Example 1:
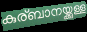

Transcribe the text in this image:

കുര്ബാനയ്ക്കുള്ള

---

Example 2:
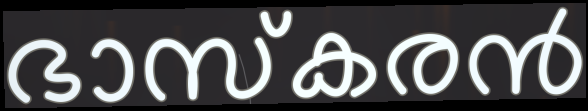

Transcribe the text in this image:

ഭാസ്കരൻ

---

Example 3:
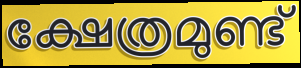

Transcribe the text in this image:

ക്ഷേത്രമുണ്ട്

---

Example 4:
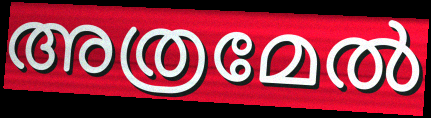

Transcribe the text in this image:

അത്രമേൽ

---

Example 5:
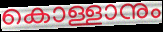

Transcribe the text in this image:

കൊള്ളാനും